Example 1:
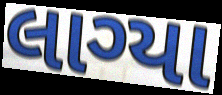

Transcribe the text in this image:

લાગ્યા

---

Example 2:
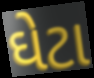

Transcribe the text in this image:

ઘેટા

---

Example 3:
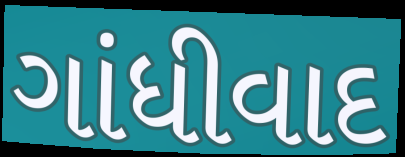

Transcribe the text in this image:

ગાંધીવાદ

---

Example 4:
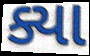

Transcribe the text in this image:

ક્યા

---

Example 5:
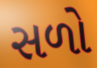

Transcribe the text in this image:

સળો